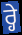
ਰ੍ਹੇ